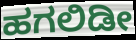
ಹಗಲಿಡೀ